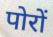
पोरों